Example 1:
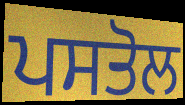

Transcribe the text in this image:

ਪਸਤੋਲ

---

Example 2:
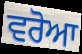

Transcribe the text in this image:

ਵਰੋਆ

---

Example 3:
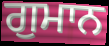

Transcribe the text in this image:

ਗੁਮਾਨ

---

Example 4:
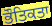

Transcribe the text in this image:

ਭੌਤਿਕਤਾ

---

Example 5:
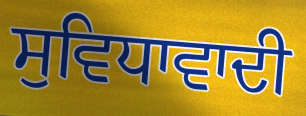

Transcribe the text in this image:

ਸੁਵਿਧਾਵਾਦੀ